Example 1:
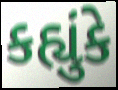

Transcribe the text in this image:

કહ્યુંકે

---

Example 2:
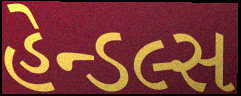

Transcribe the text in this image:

હેન્ડલ્સ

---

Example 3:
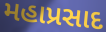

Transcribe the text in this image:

મહાપ્રસાદ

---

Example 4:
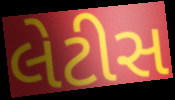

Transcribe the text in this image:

લેટીસ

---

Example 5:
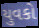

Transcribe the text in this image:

યુવકો